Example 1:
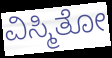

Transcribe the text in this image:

ವಿಸ್ಮಿತೋ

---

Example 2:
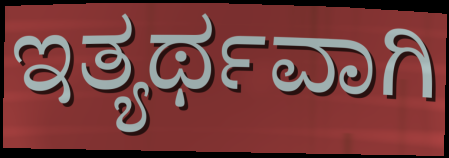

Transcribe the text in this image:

ಇತ್ಯರ್ಥವಾಗಿ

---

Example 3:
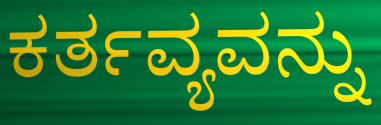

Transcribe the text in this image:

ಕರ್ತವ್ಯವನ್ನು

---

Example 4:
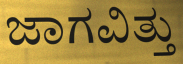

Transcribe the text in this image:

ಜಾಗವಿತ್ತು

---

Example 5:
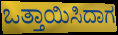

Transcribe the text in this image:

ಒತ್ತಾಯಿಸಿದಾಗ